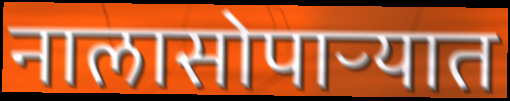
नालासोपाऱ्यात